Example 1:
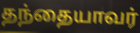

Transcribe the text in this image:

தந்தையாவர்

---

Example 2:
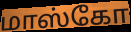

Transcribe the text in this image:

மாஸ்கோ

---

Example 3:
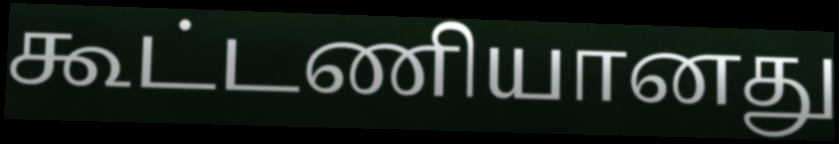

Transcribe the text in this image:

கூட்டணியானது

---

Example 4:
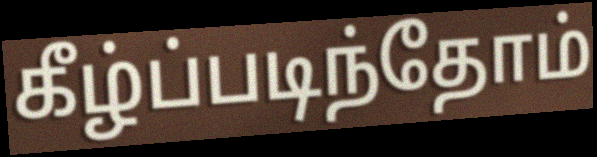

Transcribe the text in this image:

கீழ்ப்படிந்தோம்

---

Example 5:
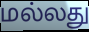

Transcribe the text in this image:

மல்லது